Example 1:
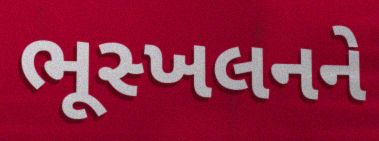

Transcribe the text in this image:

ભૂસ્ખલનને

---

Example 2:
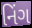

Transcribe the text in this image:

નિંગ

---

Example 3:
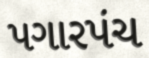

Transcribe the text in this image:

પગારપંચ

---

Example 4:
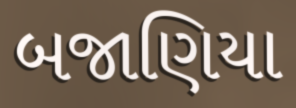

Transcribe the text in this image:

બજાણિયા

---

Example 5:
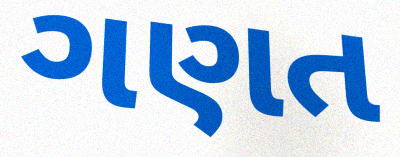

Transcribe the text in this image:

ગણત